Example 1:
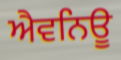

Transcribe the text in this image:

ਐਵਨਿਊ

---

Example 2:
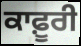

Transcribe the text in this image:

ਕਾਫ਼ੂਰੀ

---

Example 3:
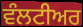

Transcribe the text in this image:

ਵੰਲਟੀਅਰ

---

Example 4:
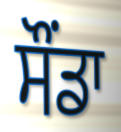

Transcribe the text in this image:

ਸੌਂਡਾ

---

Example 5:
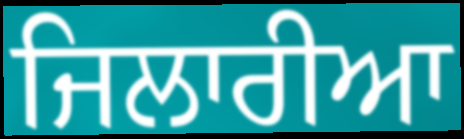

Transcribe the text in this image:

ਜਿਲਾਰੀਆ